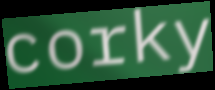
corky